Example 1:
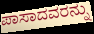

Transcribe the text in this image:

ಪಾಸಾದವರನ್ನು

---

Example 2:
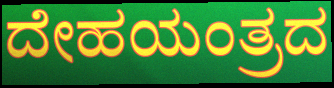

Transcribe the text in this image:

ದೇಹಯಂತ್ರದ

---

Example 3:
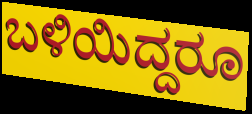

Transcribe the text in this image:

ಬಳಿಯಿದ್ದರೂ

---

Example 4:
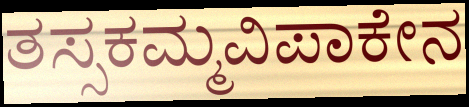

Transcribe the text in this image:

ತಸ್ಸಕಮ್ಮವಿಪಾಕೇನ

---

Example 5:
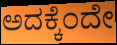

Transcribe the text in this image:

ಅದಕ್ಕೆಂದೇ